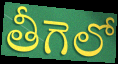
తీగెలో